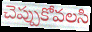
చెప్పుకోవలసి